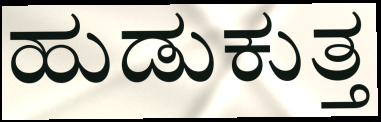
ಹುಡುಕುತ್ತ